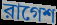
রাগেশ